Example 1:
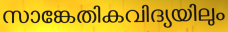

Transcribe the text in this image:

സാങ്കേതികവിദ്യയിലും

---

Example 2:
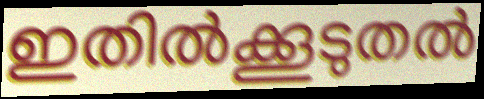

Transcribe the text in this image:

ഇതിൽക്കൂടുതൽ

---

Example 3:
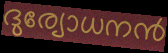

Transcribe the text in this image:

ദുര്യോധനൻ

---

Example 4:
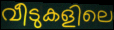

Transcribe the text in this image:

വീടുകളിലെ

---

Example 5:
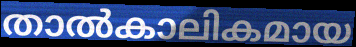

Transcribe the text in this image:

താൽകാലികമായ